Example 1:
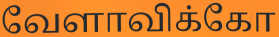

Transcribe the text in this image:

வேளாவிக்கோ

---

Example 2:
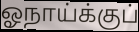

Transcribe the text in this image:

ஓநாய்க்குப்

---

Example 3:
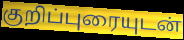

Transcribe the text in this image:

குறிப்புரையுடன்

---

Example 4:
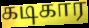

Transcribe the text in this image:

கடிகார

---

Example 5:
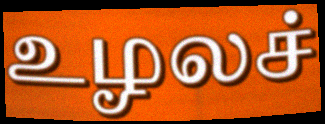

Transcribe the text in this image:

உழலச்